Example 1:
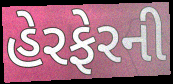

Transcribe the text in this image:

હેરફેરની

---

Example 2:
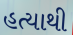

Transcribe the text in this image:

હત્યાથી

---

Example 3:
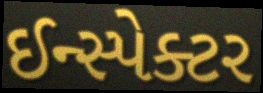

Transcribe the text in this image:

ઈન્સ્પેક્ટર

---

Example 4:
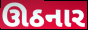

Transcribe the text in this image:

ઊઠનાર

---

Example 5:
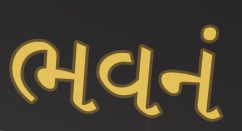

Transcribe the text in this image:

ભવનં